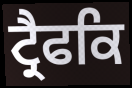
ਟ੍ਰੈਫਕਿ